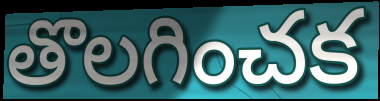
తొలగించక